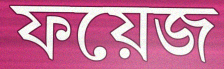
ফয়েজ